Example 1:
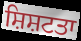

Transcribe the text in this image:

ਸ਼ਿਸ਼ਟਤਾ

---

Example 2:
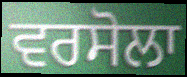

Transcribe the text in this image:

ਵਰਸੋਲਾ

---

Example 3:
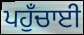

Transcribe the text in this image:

ਪਹੁਁਚਾਈ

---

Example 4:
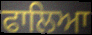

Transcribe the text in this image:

ਫਾਲਿਆ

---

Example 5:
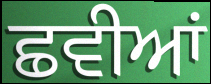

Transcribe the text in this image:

ਛਵੀਆਂ